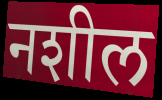
नशील